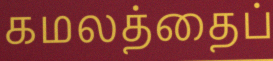
கமலத்தைப்